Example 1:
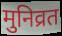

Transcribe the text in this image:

मुनिव्रत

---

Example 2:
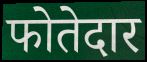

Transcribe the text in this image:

फोतेदार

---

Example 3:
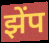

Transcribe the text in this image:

झेंप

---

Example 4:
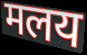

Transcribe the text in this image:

मलय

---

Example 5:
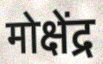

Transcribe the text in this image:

मोक्षेंद्र